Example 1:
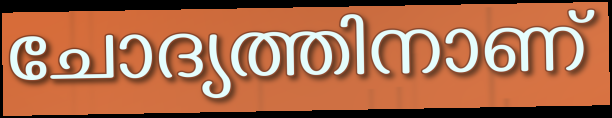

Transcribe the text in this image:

ചോദ്യത്തിനാണ്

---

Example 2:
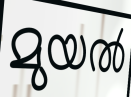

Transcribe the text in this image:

മുയൽ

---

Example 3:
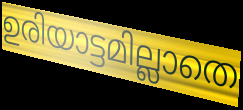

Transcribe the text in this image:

ഉരിയാട്ടമില്ലാതെ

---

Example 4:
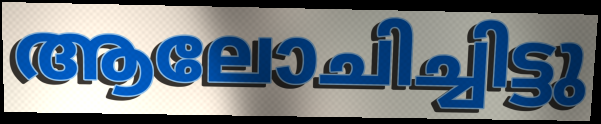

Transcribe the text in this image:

ആലോചിച്ചിട്ടു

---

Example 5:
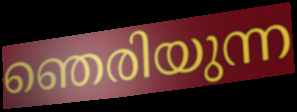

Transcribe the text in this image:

ഞെരിയുന്ന